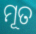
ମୂତ